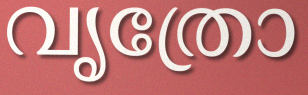
വൃത്രോ